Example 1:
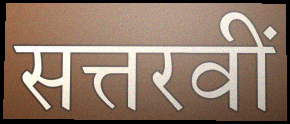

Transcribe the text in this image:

सत्तरवीं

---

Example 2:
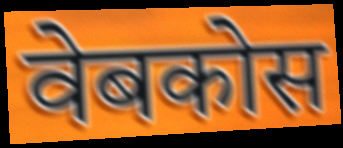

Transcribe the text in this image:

वेबकोस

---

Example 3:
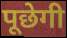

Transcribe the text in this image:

पूछेगी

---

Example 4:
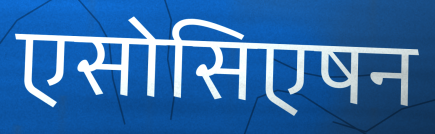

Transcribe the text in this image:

एसोसिएषन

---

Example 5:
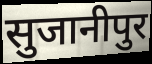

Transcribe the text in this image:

सुजानीपुर